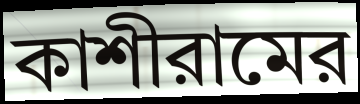
কাশীরামের